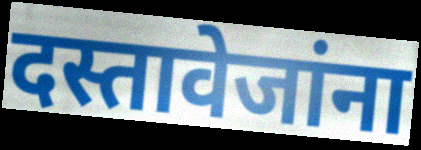
दस्तावेजांना